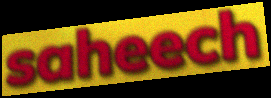
saheech